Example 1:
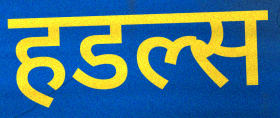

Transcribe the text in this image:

हडल्स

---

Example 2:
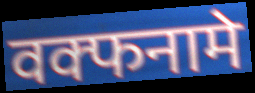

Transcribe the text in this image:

वक्फनामे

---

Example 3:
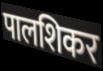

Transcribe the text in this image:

पालशिकर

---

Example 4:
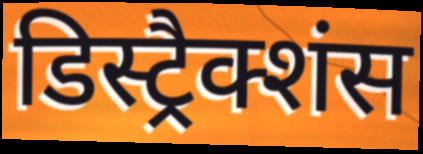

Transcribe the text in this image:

डिस्ट्रैक्शंस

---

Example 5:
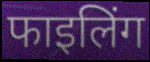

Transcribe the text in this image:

फाइलिंग